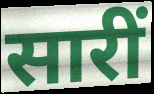
सारीं